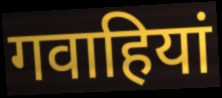
गवाहियां